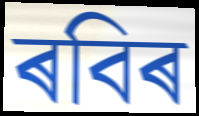
ৰবিৰ